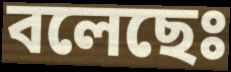
বলেছেঃ